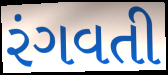
રંગવતી